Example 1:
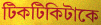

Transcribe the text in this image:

টিকটিকিটাকে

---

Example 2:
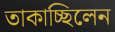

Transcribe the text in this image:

তাকাচ্ছিলেন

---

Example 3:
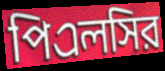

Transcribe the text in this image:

পিএলসির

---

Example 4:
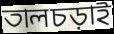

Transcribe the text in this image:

তালচড়াই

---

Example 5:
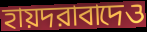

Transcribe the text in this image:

হায়দরাবাদেও